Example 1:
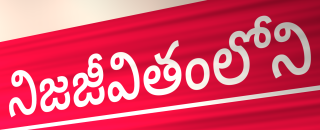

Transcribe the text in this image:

నిజజీవితంలోని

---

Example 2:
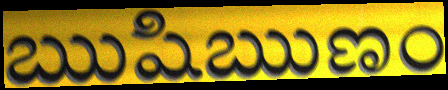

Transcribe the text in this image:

ఋషిఋణం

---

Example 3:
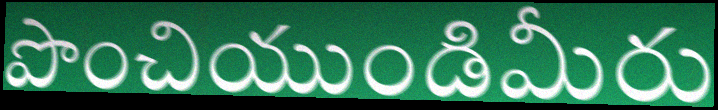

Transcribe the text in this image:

పొంచియుండిమీరు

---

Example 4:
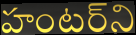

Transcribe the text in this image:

హంటర్‌ని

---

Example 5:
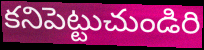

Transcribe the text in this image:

కనిపెట్టుచుండిరి